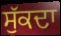
ਸੁੱਕਦਾ